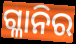
ଗ୍ଳାନିର